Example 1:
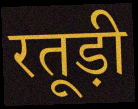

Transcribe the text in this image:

रतूड़ी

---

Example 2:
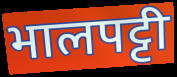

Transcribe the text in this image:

भालपट्टी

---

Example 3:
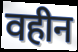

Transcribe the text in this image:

वहीन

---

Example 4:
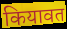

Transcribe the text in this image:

कियावत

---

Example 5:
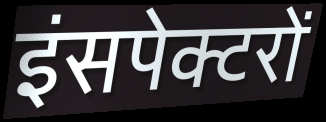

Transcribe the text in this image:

इंसपेक्टरों